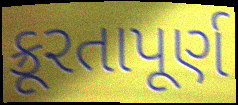
ક્રૂરતાપૂર્ણ